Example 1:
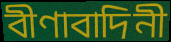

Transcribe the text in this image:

বীণাবাদিনী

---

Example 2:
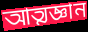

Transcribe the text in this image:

আত্মজ্ঞান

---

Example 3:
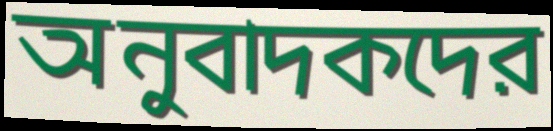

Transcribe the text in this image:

অনুবাদকদের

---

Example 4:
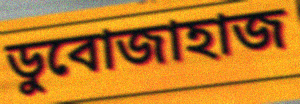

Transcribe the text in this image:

ডুবোজাহাজ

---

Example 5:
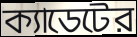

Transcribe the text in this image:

ক্যাডেটের